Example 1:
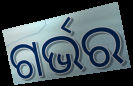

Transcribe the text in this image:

ଗର୍ଭର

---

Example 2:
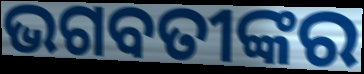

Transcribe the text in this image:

ଭଗବତୀଙ୍କର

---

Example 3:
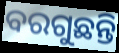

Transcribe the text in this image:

ବରଗୁଛନ୍ତି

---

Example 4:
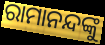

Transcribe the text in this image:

ରାମାନନ୍ଦଙ୍କୁ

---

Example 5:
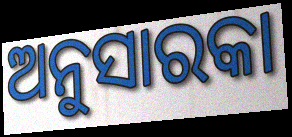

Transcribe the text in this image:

ଅନୁସାରକା